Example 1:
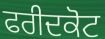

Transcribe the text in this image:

ਫਰੀਦਕੋਟ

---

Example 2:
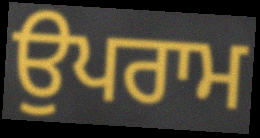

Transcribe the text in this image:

ਉਪਰਾਮ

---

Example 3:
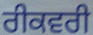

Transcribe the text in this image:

ਰੀਕਵਰੀ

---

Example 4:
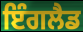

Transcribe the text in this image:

ਇੰਗਲੈਡ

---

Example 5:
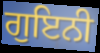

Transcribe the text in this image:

ਗੁਇਨੀ